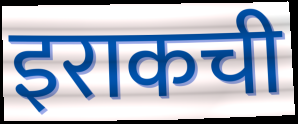
इराकची